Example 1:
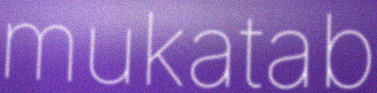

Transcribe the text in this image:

mukatab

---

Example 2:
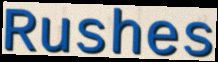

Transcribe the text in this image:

Rushes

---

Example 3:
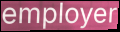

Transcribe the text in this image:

employer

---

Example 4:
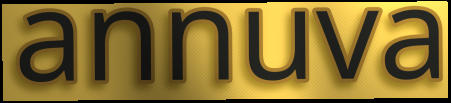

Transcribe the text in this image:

annuva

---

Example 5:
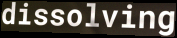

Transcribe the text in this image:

dissolving